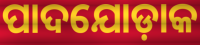
ପାଦଯୋଡ଼ାକ